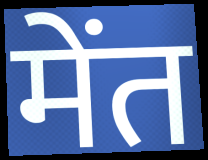
मेंत